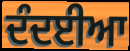
ਦੰਦਈਆ